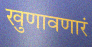
खुणावणारं